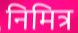
निमित्र